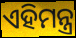
ଏହିମନ୍ତ୍ର